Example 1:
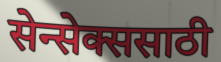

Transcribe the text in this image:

सेन्सेक्ससाठी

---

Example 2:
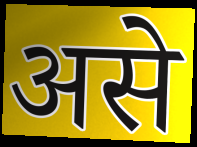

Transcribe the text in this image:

असे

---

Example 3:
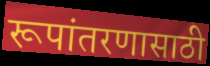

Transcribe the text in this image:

रूपांतरणासाठी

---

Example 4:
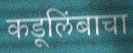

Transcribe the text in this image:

कडूलिंबाचा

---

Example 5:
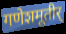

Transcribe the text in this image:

गणेशमूतीर्